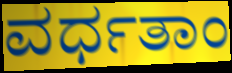
ವರ್ಧತಾಂ